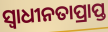
ସ୍ବାଧୀନତାପ୍ରାପ୍ତ